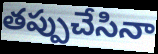
తప్పుచేసినా